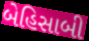
બેહિસાબી